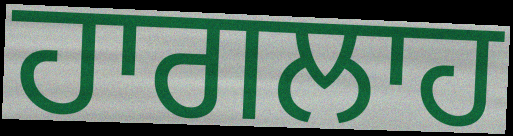
ਹਾਗਲਾਹ